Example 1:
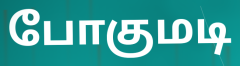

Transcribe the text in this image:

போகுமடி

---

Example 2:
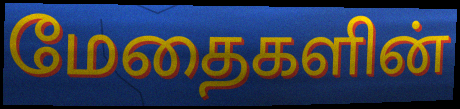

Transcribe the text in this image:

மேதைகளின்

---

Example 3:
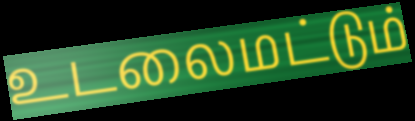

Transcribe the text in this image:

உடலைமட்டும்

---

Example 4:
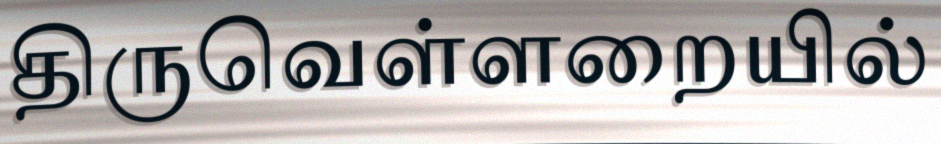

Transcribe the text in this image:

திருவெள்ளறையில்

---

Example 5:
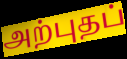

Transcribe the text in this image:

அற்புதப்